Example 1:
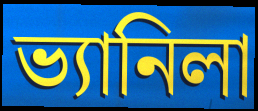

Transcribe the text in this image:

ভ্যানিলা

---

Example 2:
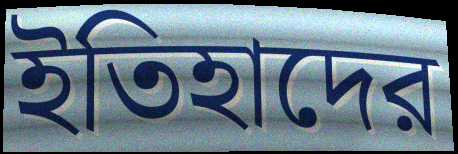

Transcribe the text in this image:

ইতিহাদের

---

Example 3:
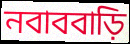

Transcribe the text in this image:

নবাববাড়ি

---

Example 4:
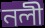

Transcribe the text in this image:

নলী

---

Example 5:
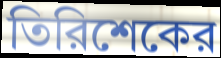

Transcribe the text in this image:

তিরিশেকের